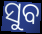
ସୁବ